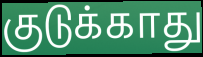
குடுக்காது